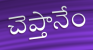
చెప్తానేం